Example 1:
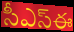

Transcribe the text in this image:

సీఎస్ఈ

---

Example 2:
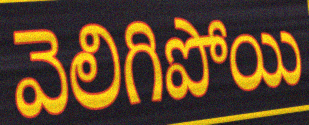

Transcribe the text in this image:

వెలిగిపోయి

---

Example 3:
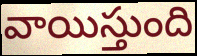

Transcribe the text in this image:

వాయిస్తుంది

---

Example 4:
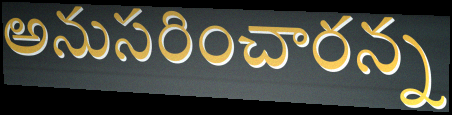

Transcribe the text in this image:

అనుసరించారన్న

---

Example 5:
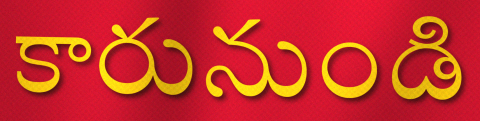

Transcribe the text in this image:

కారునుండి